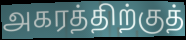
அகரத்திற்குத்